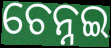
ଚେନ୍ନଇ